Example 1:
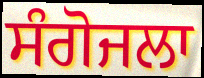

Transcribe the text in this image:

ਸੰਗੋਜਲਾ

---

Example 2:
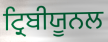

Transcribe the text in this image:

ਟ੍ਰਿਬੀਯੂਨਲ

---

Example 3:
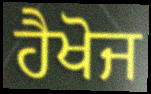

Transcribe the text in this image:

ਹੈਖੋਜ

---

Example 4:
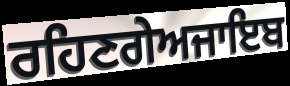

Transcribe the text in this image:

ਰਹਿਣਗੇਅਜਾਇਬ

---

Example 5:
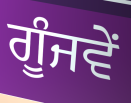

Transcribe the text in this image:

ਗੂੰਜਵੇਂ